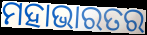
ମହାଭାରତର